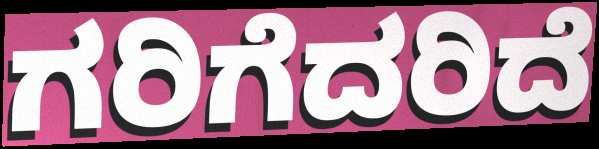
ಗರಿಗೆದರಿದೆ